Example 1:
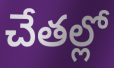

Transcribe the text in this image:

చేతల్లో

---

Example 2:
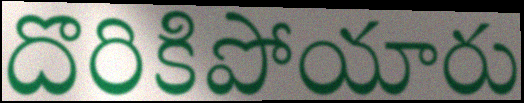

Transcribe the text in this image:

దొరికిపోయారు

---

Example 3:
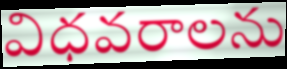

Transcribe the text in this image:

విధవరాలను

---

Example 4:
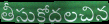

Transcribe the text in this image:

తీసుకోదలచిన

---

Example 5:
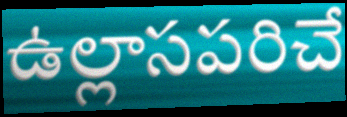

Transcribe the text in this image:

ఉల్లాసపరిచే